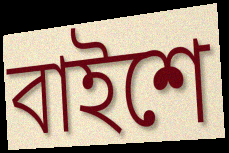
বাইশে